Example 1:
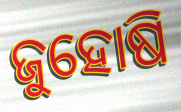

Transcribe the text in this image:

ଜୁହୋଷି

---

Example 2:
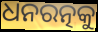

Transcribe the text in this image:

ଧନରତ୍ନକୁ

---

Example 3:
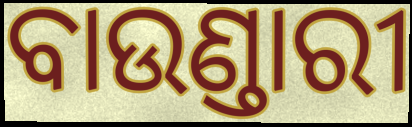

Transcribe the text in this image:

ବାଉଣ୍ଡାରୀ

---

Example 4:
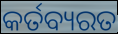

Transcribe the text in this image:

କର୍ତବ୍ୟରତ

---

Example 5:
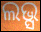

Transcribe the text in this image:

ଲଭ୍ସ